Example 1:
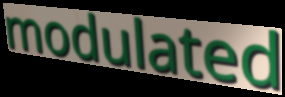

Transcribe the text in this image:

modulated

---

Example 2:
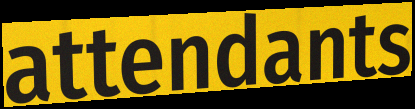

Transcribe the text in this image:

attendants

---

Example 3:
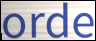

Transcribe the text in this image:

orde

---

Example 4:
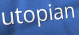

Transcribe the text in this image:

utopian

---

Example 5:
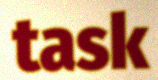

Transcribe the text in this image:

task